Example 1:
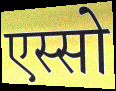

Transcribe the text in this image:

एस्सो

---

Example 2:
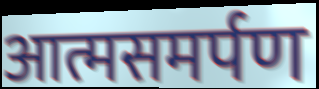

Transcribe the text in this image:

आत्‍मसमर्पण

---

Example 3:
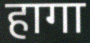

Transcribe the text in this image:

हागा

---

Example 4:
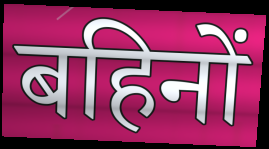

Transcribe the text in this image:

बहिनों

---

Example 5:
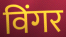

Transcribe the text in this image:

विंगर